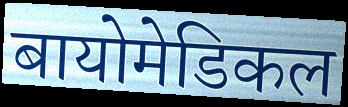
बायोमेडिकल